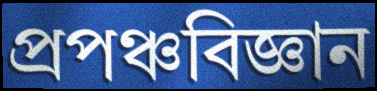
প্ৰপঞ্চবিজ্ঞান